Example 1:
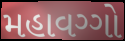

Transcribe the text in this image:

મહાવગ્ગો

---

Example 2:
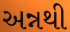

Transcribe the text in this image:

અન્નથી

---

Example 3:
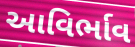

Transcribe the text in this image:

આવિર્ભાવ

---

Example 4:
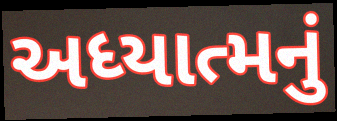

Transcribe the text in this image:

અધ્યાત્મનું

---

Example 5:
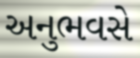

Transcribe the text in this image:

અનુભવસે